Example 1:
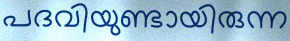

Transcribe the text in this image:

പദവിയുണ്ടായിരുന്ന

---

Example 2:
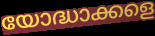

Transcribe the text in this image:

യോദ്ധാക്കളെ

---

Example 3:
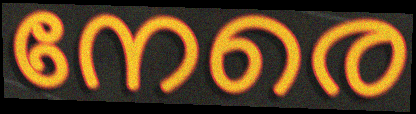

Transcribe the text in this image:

നേരെ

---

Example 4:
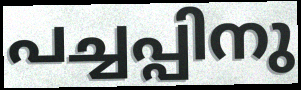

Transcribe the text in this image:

പച്ചപ്പിനു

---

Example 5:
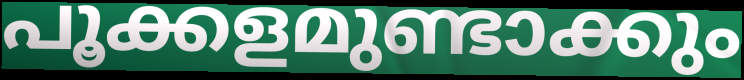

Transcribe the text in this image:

പൂക്കളമുണ്ടാക്കും